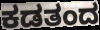
ಕಡತಂದ